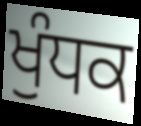
ਖੁੰਧਕ